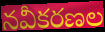
నవీకరణల